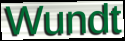
Wundt